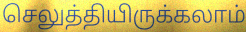
செலுத்தியிருக்கலாம்